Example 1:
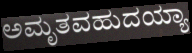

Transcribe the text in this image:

ಅಮೃತವಹುದಯ್ಯಾ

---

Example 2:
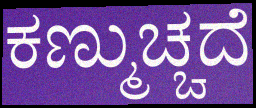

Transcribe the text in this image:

ಕಣ್ಮುಚ್ಚದೆ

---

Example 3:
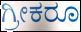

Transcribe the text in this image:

ಗ್ರೀಕರೂ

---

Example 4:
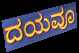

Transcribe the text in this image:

ದಯವೂ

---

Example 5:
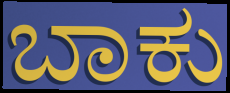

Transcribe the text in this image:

ಬಾಕು